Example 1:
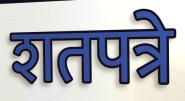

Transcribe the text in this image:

शतपत्रे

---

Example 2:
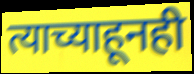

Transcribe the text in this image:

त्याच्याहूनही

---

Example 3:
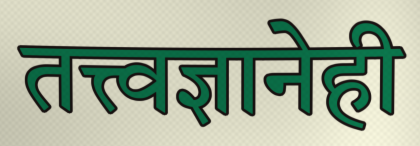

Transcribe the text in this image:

तत्त्वज्ञानेही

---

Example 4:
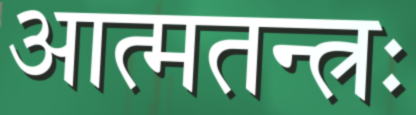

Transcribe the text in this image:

आत्मतन्त्रः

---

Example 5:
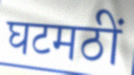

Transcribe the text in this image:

घटमठीं